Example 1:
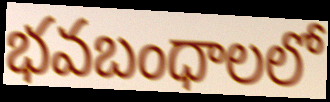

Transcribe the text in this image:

భవబంధాలలో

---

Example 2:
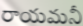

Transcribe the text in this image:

రాయమనీ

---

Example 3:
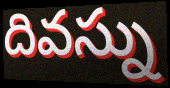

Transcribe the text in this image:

దివస్ను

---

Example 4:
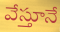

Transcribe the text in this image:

వేస్తూనే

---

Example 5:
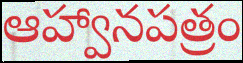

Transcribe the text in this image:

ఆహ్వానపత్రం